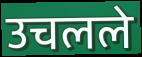
उचलले